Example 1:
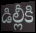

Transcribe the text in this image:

డిల్లీకి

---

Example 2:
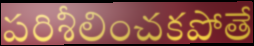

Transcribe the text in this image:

పరిశీలించకపోతే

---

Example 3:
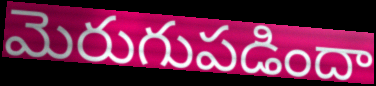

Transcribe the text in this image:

మెరుగుపడిందా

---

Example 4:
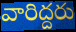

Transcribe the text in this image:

వారిద్దరు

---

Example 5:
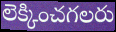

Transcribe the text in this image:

లెక్కించగలరు